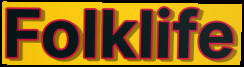
Folklife